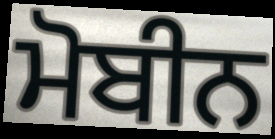
ਮੋਬੀਨ